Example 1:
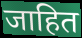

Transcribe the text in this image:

जाहित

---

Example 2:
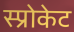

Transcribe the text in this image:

स्प्रोकेट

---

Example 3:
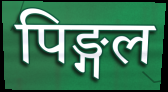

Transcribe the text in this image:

पिङ्गल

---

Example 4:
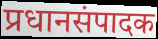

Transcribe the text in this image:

प्रधानसंपादक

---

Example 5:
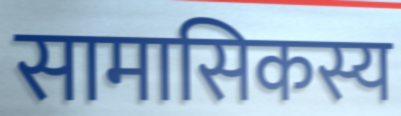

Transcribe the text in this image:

सामासिकस्य